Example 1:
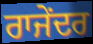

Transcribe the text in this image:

ਰਾਜੇਂਦਰ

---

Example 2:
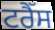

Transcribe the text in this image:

ਟਰੈੱਸ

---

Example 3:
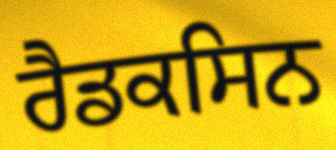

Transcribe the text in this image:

ਰੈਡਕਸਿਨ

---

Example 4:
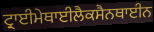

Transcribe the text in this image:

ਟ੍ਰਾਈਮੇਥਾਈਲੈਕਸੈਨਥਾਈਨ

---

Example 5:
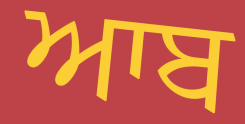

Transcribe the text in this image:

ਆਬ